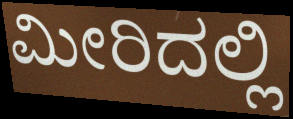
ಮೀರಿದಲ್ಲಿ